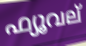
ഫ്യൂവല്